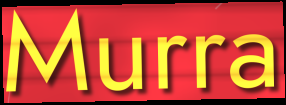
Murra